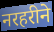
नरहरीने